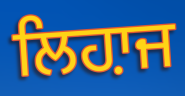
ਲਿਹ਼ਾਜ